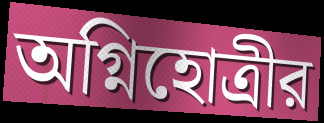
অগ্নিহোত্রীর